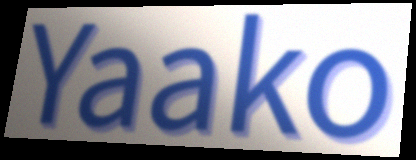
Yaako